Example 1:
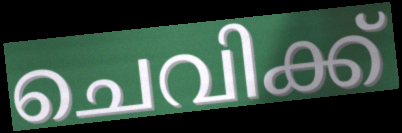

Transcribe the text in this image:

ചെവിക്ക്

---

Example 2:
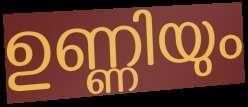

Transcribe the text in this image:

ഉണ്ണിയും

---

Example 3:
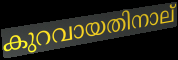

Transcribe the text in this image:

കുറവായതിനാല്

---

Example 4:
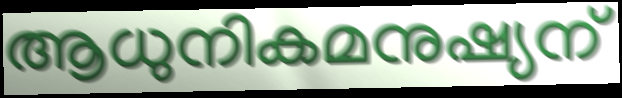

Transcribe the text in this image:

ആധുനികമനുഷ്യന്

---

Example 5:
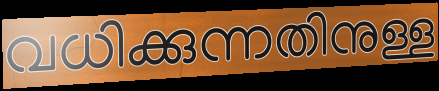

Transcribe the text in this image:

വധിക്കുന്നതിനുള്ള